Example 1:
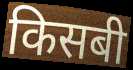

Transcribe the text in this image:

किसबी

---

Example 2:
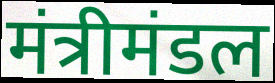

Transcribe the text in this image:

मंत्रीमंडल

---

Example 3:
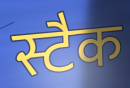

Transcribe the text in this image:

स्‍टैक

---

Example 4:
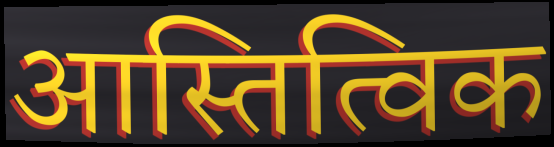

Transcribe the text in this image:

आस्तित्विक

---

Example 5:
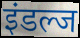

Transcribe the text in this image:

इंडल्ज